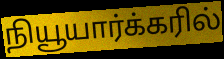
நியூயார்க்கரில்